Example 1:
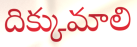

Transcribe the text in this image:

దిక్కుమాలి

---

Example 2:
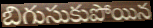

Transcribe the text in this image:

బిగుసుకుపోయిన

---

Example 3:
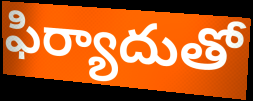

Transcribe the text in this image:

ఫిర్యాదుతో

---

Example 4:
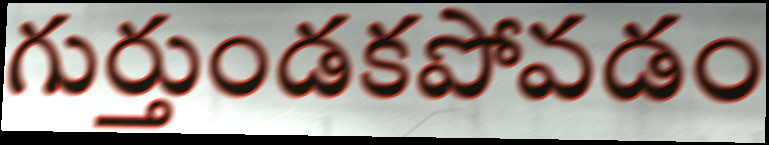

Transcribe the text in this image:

గుర్తుండకపోవడం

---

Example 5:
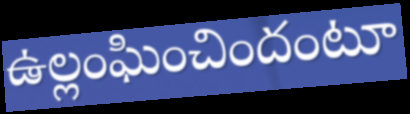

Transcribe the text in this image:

ఉల్లంఘించిందంటూ